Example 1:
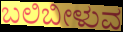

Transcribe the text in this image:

ಬಲಿಬೀಳುವ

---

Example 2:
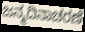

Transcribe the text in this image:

ಜನ್ಮದಿನಾಚರಣೆ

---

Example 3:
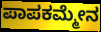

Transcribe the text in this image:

ಪಾಪಕಮ್ಮೇನ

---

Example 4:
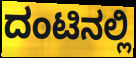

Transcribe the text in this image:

ದಂಟಿನಲ್ಲಿ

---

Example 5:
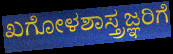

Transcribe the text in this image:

ಖಗೋಳಶಾಸ್ತ್ರಜ್ಞರಿಗೆ